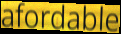
afordable